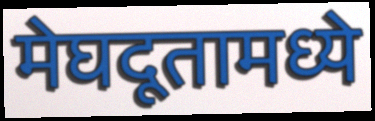
मेघदूतामध्ये